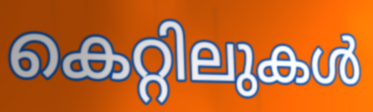
കെറ്റിലുകൾ